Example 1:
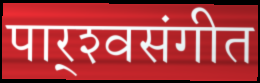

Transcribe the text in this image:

पार्श्वसंगीत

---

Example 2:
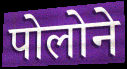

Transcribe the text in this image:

पोलोने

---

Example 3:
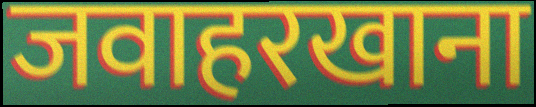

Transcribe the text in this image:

जवाहरखाना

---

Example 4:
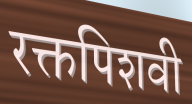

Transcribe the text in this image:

रक्तपिशवी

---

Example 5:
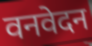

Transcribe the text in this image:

वनवेदन